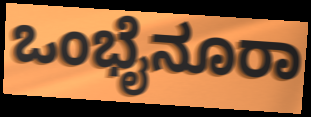
ಒಂಭೈನೂರಾ